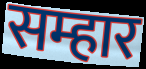
सम्हार